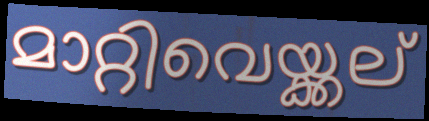
മാറ്റിവെയ്ക്കല്